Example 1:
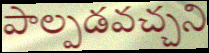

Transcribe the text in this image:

పాల్పడవచ్చని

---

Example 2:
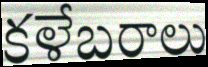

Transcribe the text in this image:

కళేబరాలు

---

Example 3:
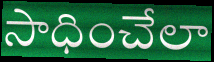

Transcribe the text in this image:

సాధించేలా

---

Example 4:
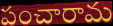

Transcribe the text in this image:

పంచారామ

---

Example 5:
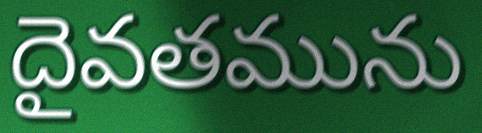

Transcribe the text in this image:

దైవతమును